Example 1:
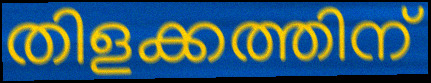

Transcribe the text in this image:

തിളക്കത്തിന്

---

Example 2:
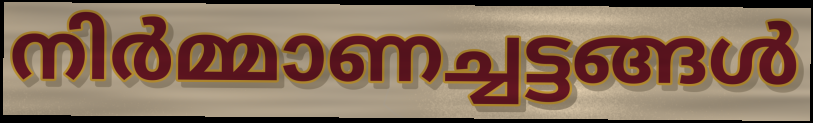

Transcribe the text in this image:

നിർമ്മാണച്ചട്ടങ്ങൾ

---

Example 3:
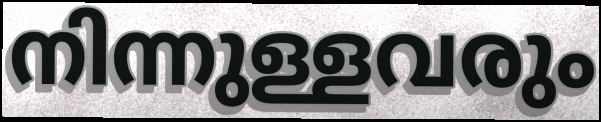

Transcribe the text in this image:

നിന്നുള്ളവരും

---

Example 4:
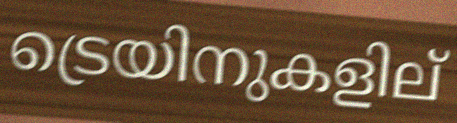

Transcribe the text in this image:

ട്രെയിനുകളില്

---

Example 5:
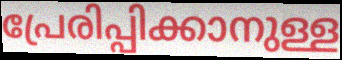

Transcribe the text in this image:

പ്രേരിപ്പിക്കാനുള്ള